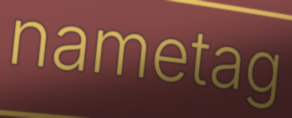
nametag